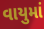
વાયુમાં